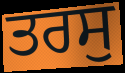
ਤਰਸੁ